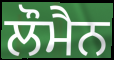
ਲੌਮੈਨ